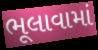
ભૂલાવામાં